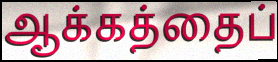
ஆக்கத்தைப்